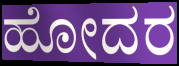
ಹೋದರ